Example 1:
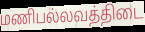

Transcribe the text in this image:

மணிபல்லவத்திடை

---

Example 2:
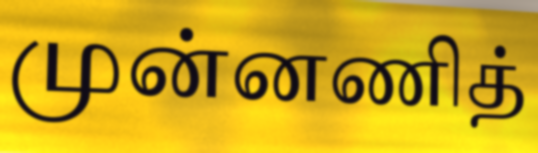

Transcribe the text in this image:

முன்னணித்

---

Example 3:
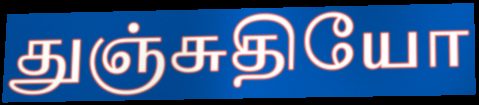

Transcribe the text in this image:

துஞ்சுதியோ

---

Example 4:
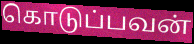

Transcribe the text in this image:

கொடுப்பவன்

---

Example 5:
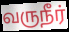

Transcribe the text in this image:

வருநீர்